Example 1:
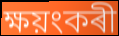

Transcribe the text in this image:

ক্ষয়ংকৰী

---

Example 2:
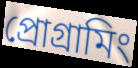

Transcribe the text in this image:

প্ৰোগ্ৰামিং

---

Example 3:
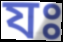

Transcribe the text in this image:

যঃ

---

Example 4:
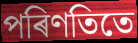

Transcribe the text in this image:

পৰিণতিতে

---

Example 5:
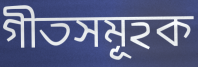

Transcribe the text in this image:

গীতসমূহক